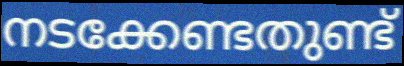
നടക്കേണ്ടതുണ്ട്